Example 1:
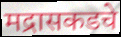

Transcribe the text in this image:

मद्रासकडचे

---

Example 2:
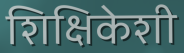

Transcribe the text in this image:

शिक्षिकेशी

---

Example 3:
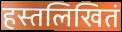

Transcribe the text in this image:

हस्तलिखितं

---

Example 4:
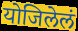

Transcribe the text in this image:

योजिलेलं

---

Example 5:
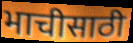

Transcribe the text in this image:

भाचीसाठी